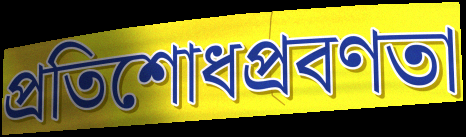
প্রতিশোধপ্রবণতা